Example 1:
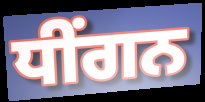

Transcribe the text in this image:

ਧੀਂਗਨ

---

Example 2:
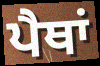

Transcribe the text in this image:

ਪੈਥਾਂ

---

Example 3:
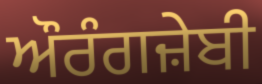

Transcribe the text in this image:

ਔਰੰਗਜ਼ੇਬੀ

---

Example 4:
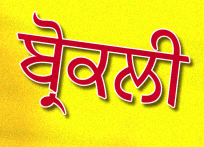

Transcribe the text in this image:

ਬ੍ਰੋਕਲੀ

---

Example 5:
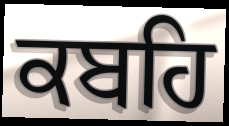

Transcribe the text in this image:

ਕਬਹਿ